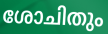
ശോചിതും